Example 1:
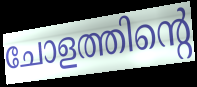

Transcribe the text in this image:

ചോളത്തിന്റെ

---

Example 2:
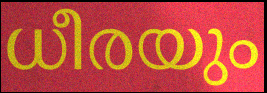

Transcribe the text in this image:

ധീരയും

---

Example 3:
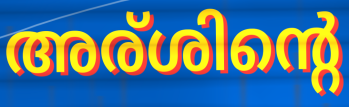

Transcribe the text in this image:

അര്ശിന്റെ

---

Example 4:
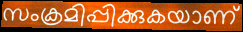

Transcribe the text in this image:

സംക്രമിപ്പിക്കുകയാണ്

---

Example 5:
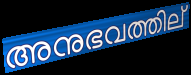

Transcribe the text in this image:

അനുഭവത്തില്